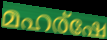
മഹര്ഷേ